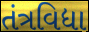
તંત્રવિદ્યા